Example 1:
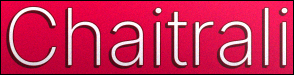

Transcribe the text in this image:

Chaitrali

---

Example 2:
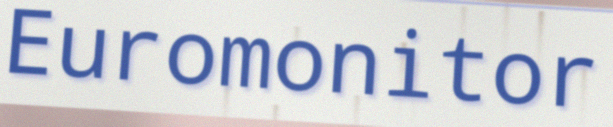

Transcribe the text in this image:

Euromonitor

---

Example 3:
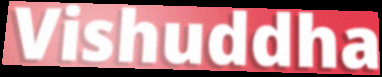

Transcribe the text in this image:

Vishuddha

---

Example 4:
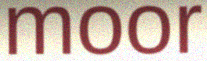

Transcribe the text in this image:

moor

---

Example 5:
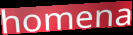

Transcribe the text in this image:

homena